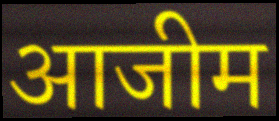
आजीम